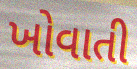
ખોવાતી